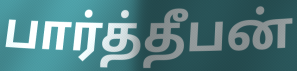
பார்த்தீபன்